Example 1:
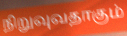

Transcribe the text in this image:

நிறுவுவதாகும்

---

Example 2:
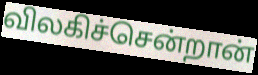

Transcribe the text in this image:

விலகிச்சென்றான்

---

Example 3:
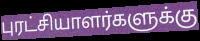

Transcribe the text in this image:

புரட்சியாளர்களுக்கு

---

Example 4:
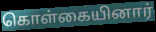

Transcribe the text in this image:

கொள்கையினார்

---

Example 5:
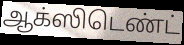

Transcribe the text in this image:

ஆக்ஸிடெண்ட்